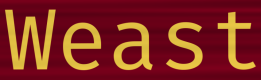
Weast